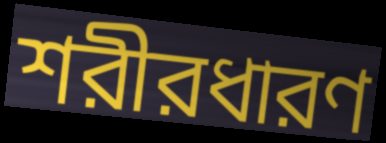
শরীরধারণ